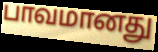
பாவமானது